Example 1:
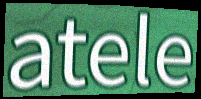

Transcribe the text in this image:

atele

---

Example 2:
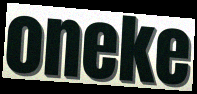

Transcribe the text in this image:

oneke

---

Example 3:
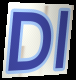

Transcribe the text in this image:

Dl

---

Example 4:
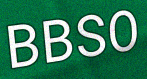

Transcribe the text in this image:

BBSO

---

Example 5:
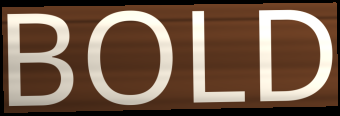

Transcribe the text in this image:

BOLD